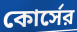
কোর্সের